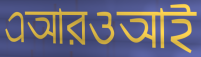
এআরওআই